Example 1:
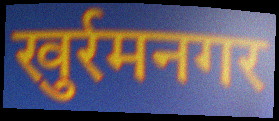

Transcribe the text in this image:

खुर्रमनगर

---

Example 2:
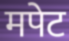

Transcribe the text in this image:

मपेट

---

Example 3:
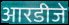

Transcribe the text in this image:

आरडीजे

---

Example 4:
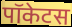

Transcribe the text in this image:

पॉकेटस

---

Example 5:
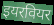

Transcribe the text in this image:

इयरवियर